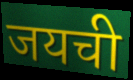
जयची